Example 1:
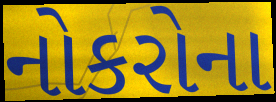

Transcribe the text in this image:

નોકરોના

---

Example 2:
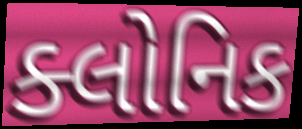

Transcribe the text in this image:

ક્લોનિક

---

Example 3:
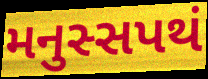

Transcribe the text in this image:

મનુસ્સપથં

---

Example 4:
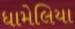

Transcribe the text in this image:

ધામેલિયા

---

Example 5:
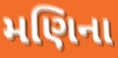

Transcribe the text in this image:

મણિના